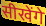
सीखेंगे